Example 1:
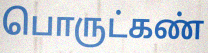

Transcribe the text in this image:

பொருட்கண்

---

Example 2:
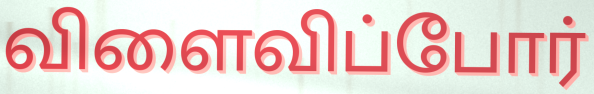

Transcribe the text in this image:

விளைவிப்போர்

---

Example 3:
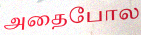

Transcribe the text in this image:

அதைபோல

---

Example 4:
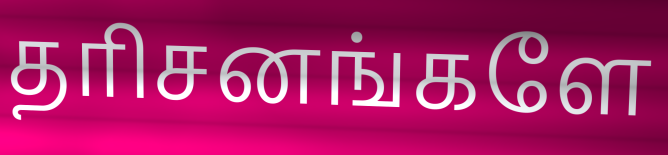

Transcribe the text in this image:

தரிசனங்களே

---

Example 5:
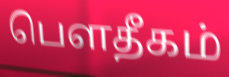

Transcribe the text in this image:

பௌதீகம்